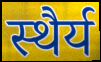
स्थैर्य